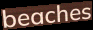
beaches